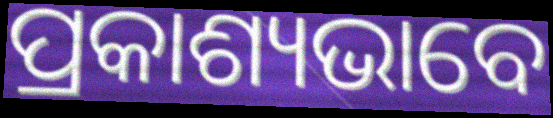
ପ୍ରକାଶ୍ୟଭାବେ